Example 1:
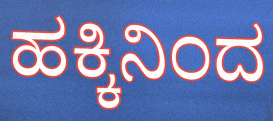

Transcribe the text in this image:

ಹಕ್ಕಿನಿಂದ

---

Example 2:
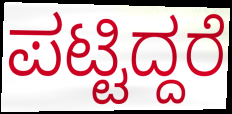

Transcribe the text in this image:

ಪಟ್ಟಿದ್ದರೆ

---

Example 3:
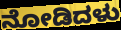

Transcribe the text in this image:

ನೋಡಿದಳು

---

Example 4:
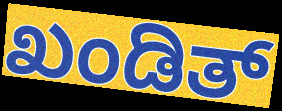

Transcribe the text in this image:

ಖಂಡಿತ್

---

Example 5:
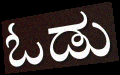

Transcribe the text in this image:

ಓಡು